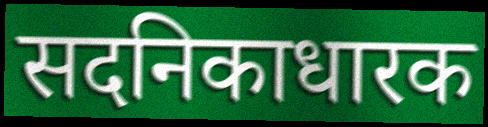
सदनिकाधारक